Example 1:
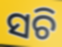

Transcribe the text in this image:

ସଚି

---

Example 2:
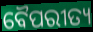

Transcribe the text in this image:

ବୈପରୀତ୍ୟ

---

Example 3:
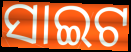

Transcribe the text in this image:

ସାଇଟ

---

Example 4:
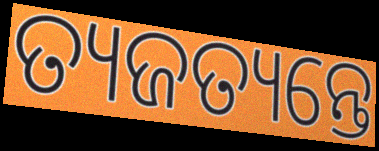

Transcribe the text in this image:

ତ୍ୟଜତ୍ୟନ୍ତେ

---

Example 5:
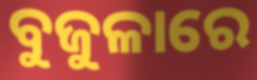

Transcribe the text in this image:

ବୁଜୁଳାରେ